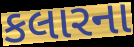
કલારના